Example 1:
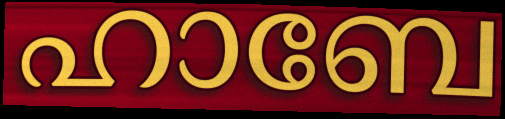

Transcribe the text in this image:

ഹാബേ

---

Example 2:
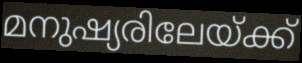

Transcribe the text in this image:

മനുഷ്യരിലേയ്ക്ക്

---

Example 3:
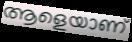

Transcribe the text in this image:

ആളെയാണ്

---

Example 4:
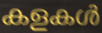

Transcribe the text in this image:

കളകൾ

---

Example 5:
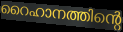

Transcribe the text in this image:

റൈഹാനത്തിന്റെ